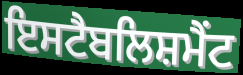
ਇਸਟੈਬਲਿਸ਼ਮੈਂਟ